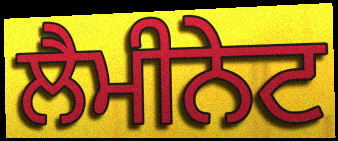
ਲੈਮੀਨੇਟ